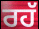
ਰਹੱ